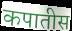
कपातीस